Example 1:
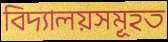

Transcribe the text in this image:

বিদ্যালয়সমূহত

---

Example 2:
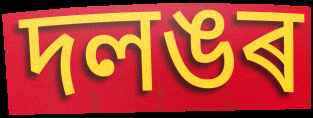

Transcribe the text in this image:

দলঙৰ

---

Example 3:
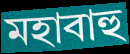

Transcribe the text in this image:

মহাবাহু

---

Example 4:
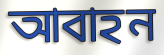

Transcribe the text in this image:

আবাহন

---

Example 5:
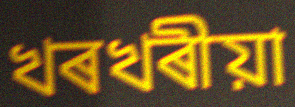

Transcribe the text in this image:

খৰখৰীয়া